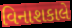
વિનાશકાલે